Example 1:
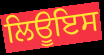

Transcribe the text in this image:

ਲਿਊਇਸ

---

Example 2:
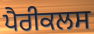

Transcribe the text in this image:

ਪੈਰੀਕਲਸ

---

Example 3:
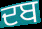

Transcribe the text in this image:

ਦਬ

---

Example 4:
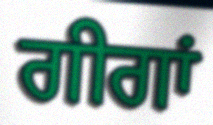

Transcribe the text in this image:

ਗੀਗਾਂ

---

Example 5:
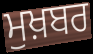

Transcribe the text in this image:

ਮੁਖ਼ਬਰ